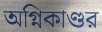
অগ্নিকাণ্ডর